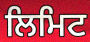
ਲਿਮਿਟ